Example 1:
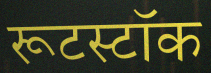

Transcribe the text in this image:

रूटस्टॉक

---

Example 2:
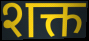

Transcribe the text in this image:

शक्त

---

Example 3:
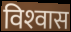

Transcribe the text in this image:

विश्‍वास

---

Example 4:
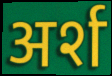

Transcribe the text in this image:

अर्श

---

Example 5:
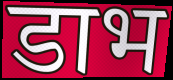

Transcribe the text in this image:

डाभ